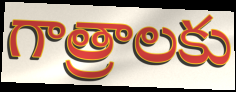
గాత్రాలకు